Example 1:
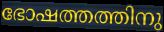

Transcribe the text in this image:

ഭോഷത്തത്തിനു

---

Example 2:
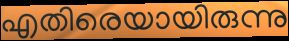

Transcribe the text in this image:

എതിരെയായിരുന്നു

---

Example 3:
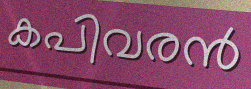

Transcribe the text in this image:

കപിവരൻ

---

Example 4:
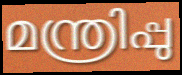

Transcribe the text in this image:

മന്ത്രിപ്പു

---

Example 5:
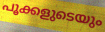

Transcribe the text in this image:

പൂക്കളുടെയും